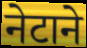
नेटाने